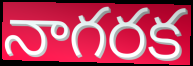
నాగరక